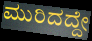
ಮುರಿದದ್ದೇ